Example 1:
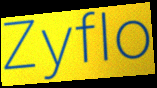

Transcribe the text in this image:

Zyflo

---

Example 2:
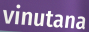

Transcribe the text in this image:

vinutana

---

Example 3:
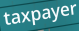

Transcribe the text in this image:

taxpayer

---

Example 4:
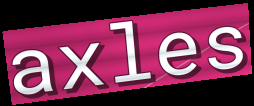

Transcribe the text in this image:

axles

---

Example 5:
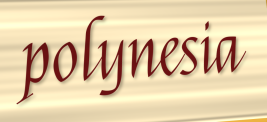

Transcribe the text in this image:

polynesia